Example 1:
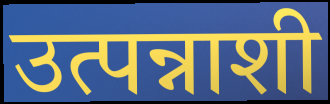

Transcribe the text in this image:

उत्पन्नाशी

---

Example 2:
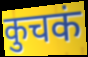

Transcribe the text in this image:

कुचकं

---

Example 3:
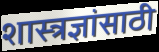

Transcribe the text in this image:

शास्त्रज्ञांसाठी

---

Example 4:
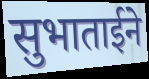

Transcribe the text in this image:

सुभाताईने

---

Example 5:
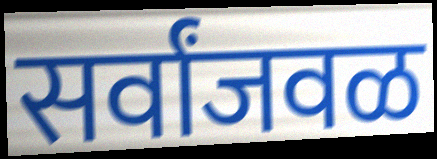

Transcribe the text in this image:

सर्वांजवळ